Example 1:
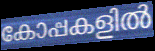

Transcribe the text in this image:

കോപ്പകളിൽ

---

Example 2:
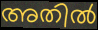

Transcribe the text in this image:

അതിൽ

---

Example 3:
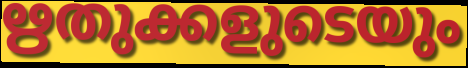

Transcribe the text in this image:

ഋതുക്കളുടെയും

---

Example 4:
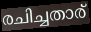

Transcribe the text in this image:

രചിച്ചതാര്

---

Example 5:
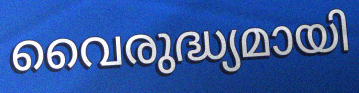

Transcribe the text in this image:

വൈരുദ്ധ്യമായി